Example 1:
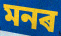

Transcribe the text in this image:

মনৰ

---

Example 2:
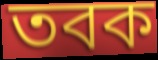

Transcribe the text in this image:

তবক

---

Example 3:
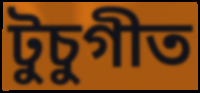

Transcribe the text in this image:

টুচুগীত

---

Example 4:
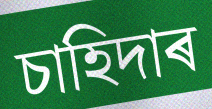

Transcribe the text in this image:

চাহিদাৰ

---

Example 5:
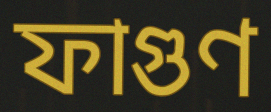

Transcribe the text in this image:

ফাগুণ